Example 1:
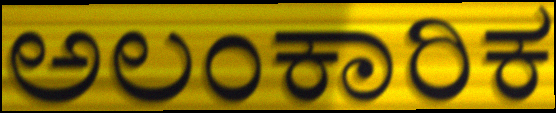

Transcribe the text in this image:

ಅಲಂಕಾರಿಕ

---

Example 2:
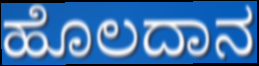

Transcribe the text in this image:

ಹೊಲದಾನ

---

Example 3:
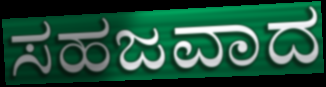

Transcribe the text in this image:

ಸಹಜವಾದ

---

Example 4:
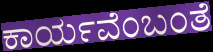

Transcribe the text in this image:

ಕಾರ್ಯವೆಂಬಂತೆ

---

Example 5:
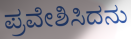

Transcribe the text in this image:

ಪ್ರವೇಶಿಸಿದನು